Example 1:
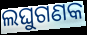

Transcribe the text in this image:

ଲଘୁଗଣକ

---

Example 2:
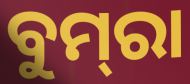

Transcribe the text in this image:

ବୁମ୍‌ରା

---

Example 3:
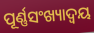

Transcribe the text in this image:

ପୂର୍ଣ୍ଣସଂଖ୍ୟାଦ୍ଵୟ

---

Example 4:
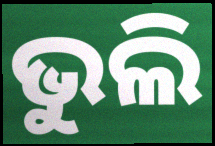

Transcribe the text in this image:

ଭୁଲି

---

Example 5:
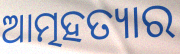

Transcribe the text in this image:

ଆତ୍ମହତ୍ୟାର